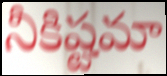
నీకిష్టమా